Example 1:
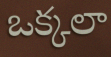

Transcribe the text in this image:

ఒక్కలా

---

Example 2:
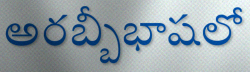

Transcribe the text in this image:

అరబ్బీభాషలో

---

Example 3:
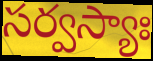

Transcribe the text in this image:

సర్వస్యాః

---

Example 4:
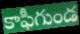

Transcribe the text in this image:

కాఫీగుండ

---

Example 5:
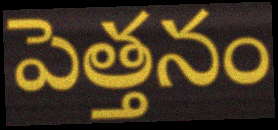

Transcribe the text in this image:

పెత్తనం